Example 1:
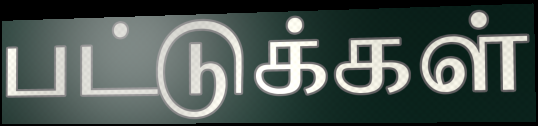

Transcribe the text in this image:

பட்டுக்கள்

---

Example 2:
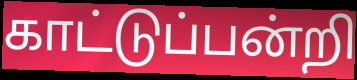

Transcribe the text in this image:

காட்டுப்பன்றி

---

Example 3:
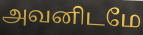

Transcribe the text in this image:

அவனிடமே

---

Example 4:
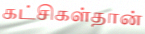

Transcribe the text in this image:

கட்சிகள்தான்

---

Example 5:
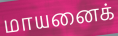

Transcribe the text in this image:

மாயனைக்